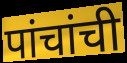
पांचांची